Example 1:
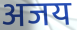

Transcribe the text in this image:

अजय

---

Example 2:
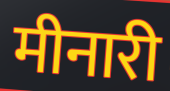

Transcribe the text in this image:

मीनारी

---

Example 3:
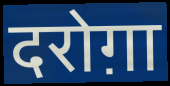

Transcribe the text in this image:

दरोग़ा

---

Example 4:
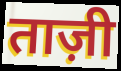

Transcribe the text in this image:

ताज़ी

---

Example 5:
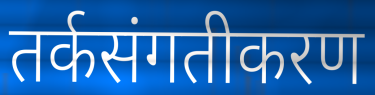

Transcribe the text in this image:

तर्कसंगतीकरण